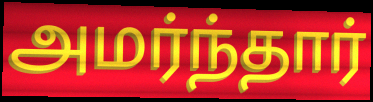
அமர்ந்தார்